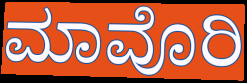
ಮಾವೊರಿ